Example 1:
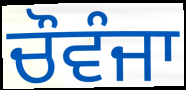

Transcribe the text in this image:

ਚੌਵੰਜਾ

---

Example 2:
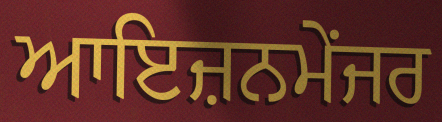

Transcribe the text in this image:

ਆਇਜ਼ਨਮੇਂਜਰ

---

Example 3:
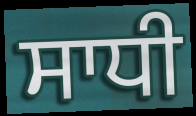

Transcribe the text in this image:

ਸਾਧੀ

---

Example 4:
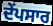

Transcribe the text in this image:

ਦੇਂਪਸਾਰ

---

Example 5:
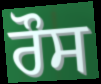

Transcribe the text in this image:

ਰੌਸ